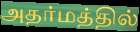
அதர்மத்தில்